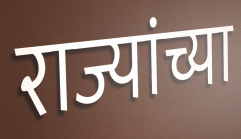
राज्यांच्या